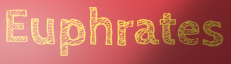
Euphrates